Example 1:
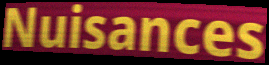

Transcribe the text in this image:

Nuisances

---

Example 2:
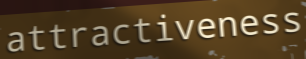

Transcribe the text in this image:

attractiveness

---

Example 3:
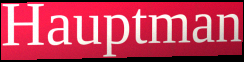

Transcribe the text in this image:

Hauptman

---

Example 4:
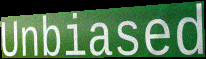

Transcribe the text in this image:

Unbiased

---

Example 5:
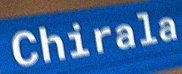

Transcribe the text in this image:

Chirala